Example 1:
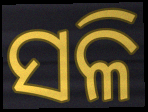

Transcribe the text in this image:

ସଳି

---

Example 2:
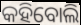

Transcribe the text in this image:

କହିବୋଲି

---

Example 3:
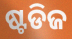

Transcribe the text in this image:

ଷ୍ଟଡିଜ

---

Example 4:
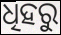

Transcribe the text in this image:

ଧିହରୁ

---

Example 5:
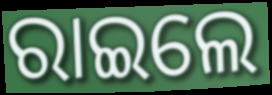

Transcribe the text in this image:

ରାଇଲେ